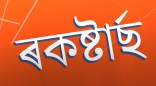
ৰকষ্টাৰ্ছ